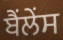
ਬੈਂਲੇਂਸ